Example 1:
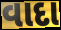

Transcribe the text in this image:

વાદા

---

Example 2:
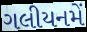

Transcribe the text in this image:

ગલીયનમેં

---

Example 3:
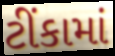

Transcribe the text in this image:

ટીંકામાં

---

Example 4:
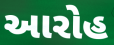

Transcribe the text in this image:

આરોહ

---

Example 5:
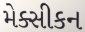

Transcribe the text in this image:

મેક્સીકન